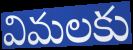
విమలకు